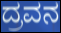
ದ್ರವನ